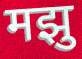
मझु